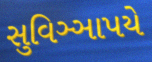
સુવિઞ્ઞાપયે